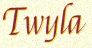
Twyla